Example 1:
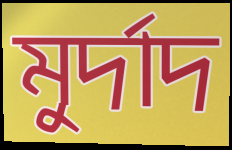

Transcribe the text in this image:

মুৰ্দাদ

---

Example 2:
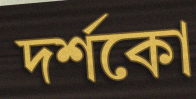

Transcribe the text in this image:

দৰ্শকো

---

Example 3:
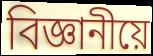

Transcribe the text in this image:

বিজ্ঞানীয়ে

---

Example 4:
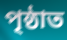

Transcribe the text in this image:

পৃষ্ঠাত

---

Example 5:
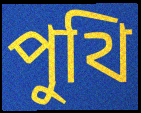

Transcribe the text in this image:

পুথি